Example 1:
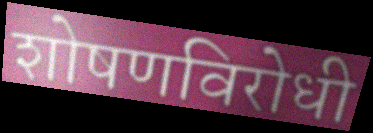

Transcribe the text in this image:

शोषणविरोधी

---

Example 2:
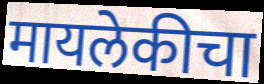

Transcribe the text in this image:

मायलेकीचा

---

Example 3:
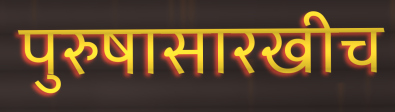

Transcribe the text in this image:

पुरुषासारखीच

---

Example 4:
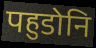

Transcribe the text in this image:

पहुडोनि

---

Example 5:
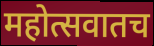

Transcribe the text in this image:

महोत्सवातच